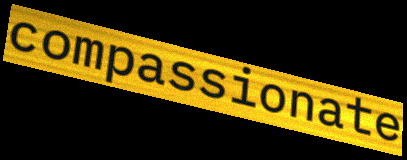
compassionate